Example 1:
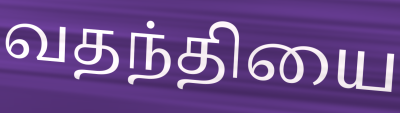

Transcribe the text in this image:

வதந்தியை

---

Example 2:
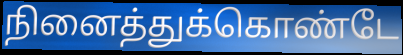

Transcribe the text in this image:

நினைத்துக்கொண்டே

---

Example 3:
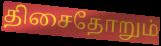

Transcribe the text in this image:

திசைதோறும்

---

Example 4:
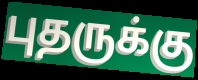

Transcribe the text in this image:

புதருக்கு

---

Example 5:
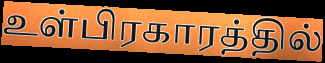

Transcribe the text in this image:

உள்பிரகாரத்தில்